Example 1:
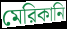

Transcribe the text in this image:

মেরিকানি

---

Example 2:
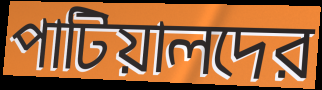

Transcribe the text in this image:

পাটিয়ালদের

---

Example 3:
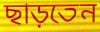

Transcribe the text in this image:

ছাড়তেন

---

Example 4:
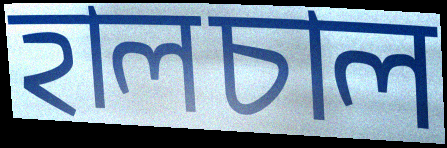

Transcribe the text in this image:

হালচাল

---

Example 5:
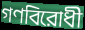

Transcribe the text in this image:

গণবিরোধী